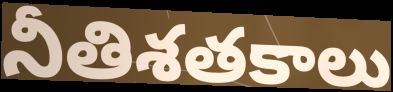
నీతిశతకాలు